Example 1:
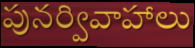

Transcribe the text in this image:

పునర్వివాహాలు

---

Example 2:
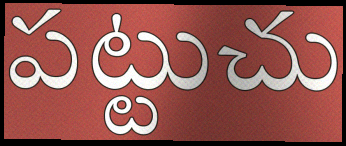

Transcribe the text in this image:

పట్టుచు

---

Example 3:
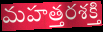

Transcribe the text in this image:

మహత్తరశక్తి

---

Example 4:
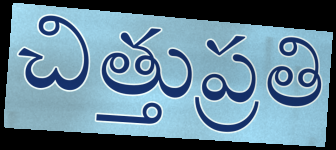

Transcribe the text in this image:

చిత్తుప్రతి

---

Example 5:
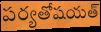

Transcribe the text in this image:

పర్యతోషయత్